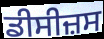
ਡੀਸੀਜ਼ਸ